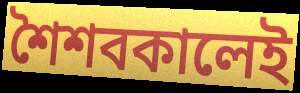
শৈশবকালেই